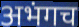
अभंगच